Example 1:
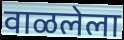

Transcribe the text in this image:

वाळलेला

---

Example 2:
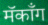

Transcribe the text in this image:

मॅकाँग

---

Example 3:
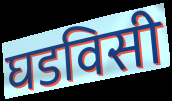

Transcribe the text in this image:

घडविसी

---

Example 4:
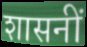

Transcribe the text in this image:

शासनीं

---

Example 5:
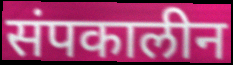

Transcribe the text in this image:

संपकालीन